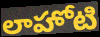
లాహోటి